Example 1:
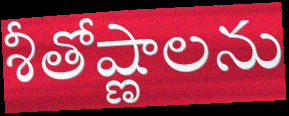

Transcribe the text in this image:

శీతోష్ణాలను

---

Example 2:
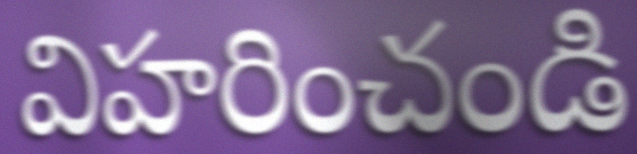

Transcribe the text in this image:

విహరించండి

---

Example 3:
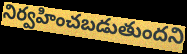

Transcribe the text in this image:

నిర్వహించబడుతుందని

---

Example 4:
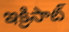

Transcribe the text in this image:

ఇక్రిసాట్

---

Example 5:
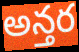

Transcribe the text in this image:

అన్తర